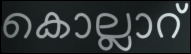
കൊല്ലാറ്